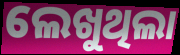
ଲେଖୁଥିଲା